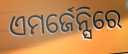
ଏମର୍ଜେନ୍ସିରେ